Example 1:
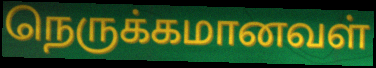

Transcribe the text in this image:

நெருக்கமானவள்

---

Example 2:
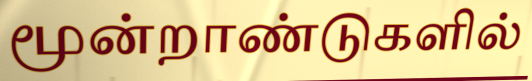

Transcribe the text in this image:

மூன்றாண்டுகளில்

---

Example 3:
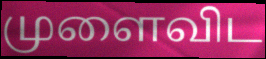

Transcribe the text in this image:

முளைவிட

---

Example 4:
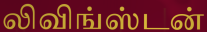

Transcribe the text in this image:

லிவிங்ஸ்டன்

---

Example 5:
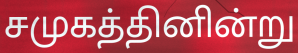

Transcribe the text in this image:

சமுகத்தினின்று